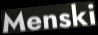
Menski